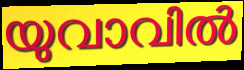
യുവാവിൽ